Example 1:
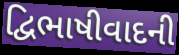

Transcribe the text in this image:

દ્વિભાષીવાદની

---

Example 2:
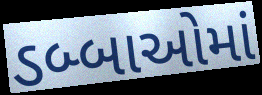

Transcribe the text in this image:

ડબ્બાઓમાં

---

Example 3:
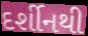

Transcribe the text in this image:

દર્શીનથી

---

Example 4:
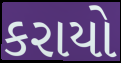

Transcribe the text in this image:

કરાયો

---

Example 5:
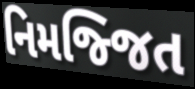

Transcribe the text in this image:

નિમજ્જિત